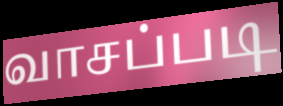
வாசப்படி